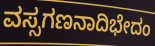
ವಸ್ಸಗಣನಾದಿಭೇದಂ